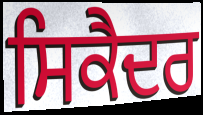
ਸਿਕੈਦਰ